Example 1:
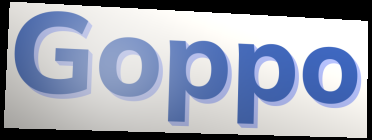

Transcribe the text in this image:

Goppo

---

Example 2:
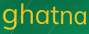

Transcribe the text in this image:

ghatna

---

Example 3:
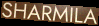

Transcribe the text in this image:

SHARMILA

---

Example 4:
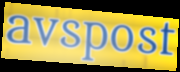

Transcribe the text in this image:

avspost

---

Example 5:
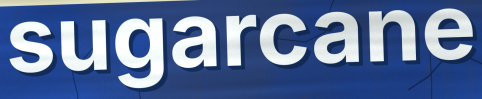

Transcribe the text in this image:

sugarcane